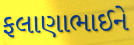
ફલાણાભાઈને